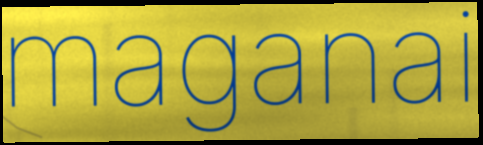
maganai